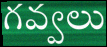
గవ్వలు